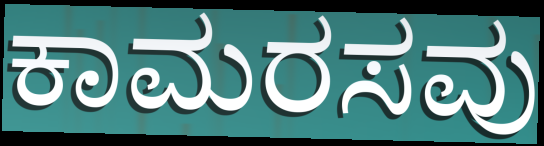
ಕಾಮರಸವು